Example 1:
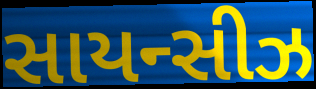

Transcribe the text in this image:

સાયન્સીઝ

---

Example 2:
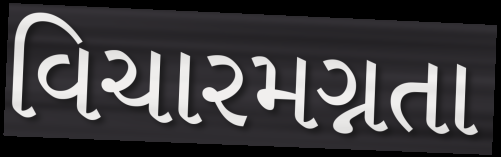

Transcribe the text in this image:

વિચારમગ્નતા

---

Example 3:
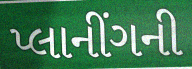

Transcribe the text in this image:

પ્લાનીંગની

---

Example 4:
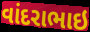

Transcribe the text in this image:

વાંદરાભાઇ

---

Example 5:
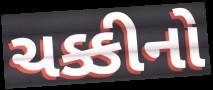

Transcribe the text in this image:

ચક્કીનો